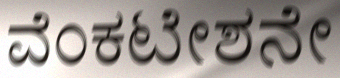
ವೆಂಕಟೇಶನೇ